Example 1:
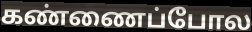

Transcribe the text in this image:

கண்ணைப்போல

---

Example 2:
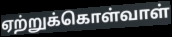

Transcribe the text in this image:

ஏற்றுக்கொள்வாள்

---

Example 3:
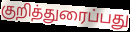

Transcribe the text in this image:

குறித்துரைப்பது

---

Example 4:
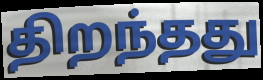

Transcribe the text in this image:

திறந்தது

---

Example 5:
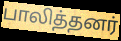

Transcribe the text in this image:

பாலித்தனர்